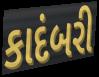
કાદંબરી